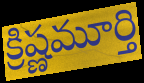
క్రిష్ణమూర్తి